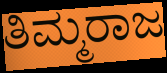
ತಿಮ್ಮರಾಜ